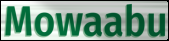
Mowaabu